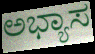
ಅಭ್ಯಾಸ